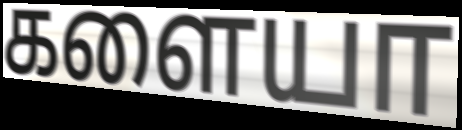
களையா